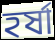
হর্ষা